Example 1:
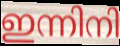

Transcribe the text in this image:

ഇന്നിനി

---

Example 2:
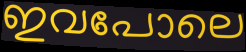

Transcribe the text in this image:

ഇവപോലെ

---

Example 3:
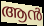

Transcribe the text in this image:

ആൻ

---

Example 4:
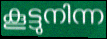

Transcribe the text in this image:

കൂട്ടുനിന്ന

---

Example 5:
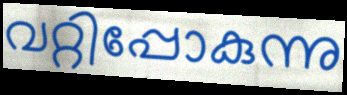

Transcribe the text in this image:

വറ്റിപ്പോകുന്നു